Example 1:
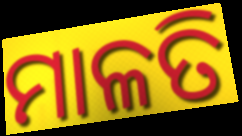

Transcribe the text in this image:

ମାଳତି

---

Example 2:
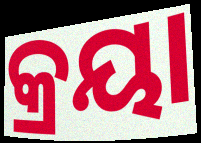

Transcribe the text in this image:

କ୍ରୟା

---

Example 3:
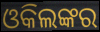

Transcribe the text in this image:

ଓକିଲଙ୍କର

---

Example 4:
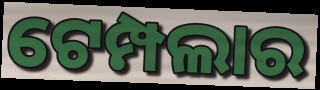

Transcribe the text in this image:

ଟେମ୍ପଲାର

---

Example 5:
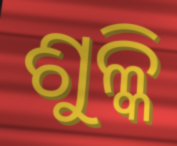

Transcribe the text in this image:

ଶୁଳ୍କି